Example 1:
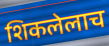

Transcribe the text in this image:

शिकलेलाच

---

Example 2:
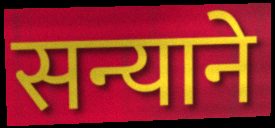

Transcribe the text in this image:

सन्याने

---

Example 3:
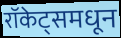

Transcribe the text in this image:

रॉकेट्समधून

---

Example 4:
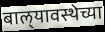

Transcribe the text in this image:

बाल्यावस्थेच्या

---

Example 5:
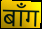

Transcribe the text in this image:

बाँग